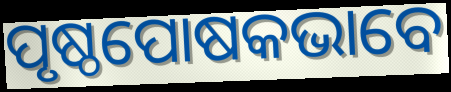
ପୃଷ୍ଠପୋଷକଭାବେ